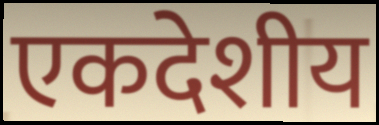
एकदेशीय